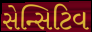
સેન્સિટિવ